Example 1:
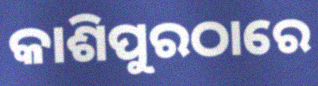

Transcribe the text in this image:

କାଶିପୁରଠାରେ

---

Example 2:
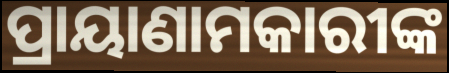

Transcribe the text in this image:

ପ୍ରାୟାଣାମକାରୀଙ୍କ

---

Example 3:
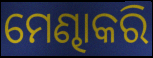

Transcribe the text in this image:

ମେଣ୍ଢାକରି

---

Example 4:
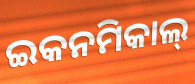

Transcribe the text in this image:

ଇକନମିକାଲ୍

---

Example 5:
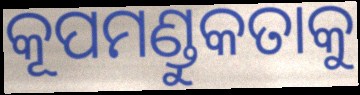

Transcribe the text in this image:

କୂପମଣ୍ଡୁକତାକୁ